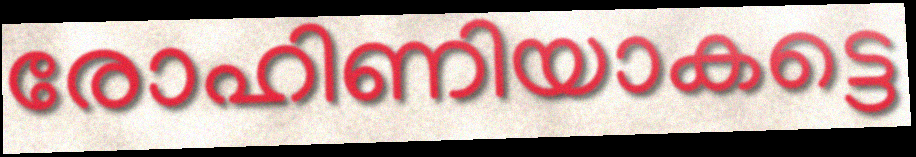
രോഹിണിയാകട്ടെ